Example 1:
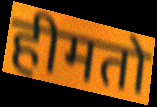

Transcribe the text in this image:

हीमतो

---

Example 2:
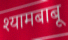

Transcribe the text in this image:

श्यामबाबू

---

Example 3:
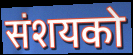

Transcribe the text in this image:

संशयको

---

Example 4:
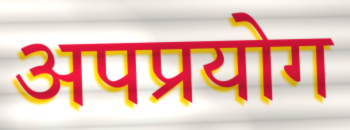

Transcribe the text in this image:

अपप्रयोग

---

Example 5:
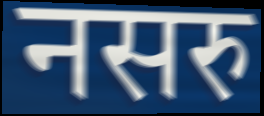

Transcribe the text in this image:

नसरु